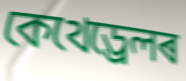
কেথেড্ৰেলৰ